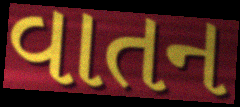
વાતન